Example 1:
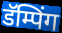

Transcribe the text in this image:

डॅम्पिंग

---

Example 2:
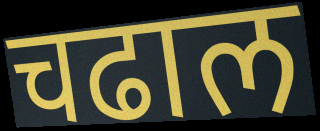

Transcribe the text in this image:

चढाल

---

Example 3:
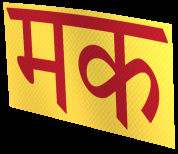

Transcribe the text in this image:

मक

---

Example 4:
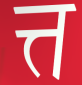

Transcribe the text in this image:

त्त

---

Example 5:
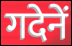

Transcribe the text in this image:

गदेनें